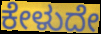
ಕೇಳುದೇ